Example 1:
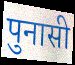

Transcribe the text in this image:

पुनासी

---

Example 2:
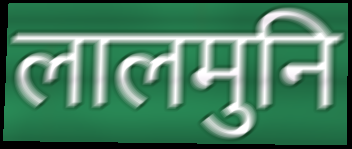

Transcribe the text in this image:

लालमुनि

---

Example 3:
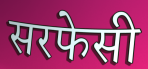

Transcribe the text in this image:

सरफेसी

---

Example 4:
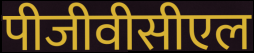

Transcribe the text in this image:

पीजीवीसीएल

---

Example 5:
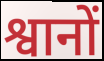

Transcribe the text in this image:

श्वानों